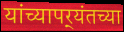
यांच्यापर्यंतच्या